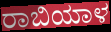
ರಾಬಿಯಾಳ